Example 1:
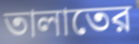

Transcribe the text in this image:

তালাতের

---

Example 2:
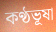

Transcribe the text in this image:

কণ্ঠভূষা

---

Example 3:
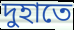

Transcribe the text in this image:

দুহাতে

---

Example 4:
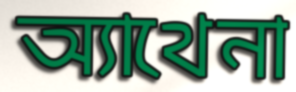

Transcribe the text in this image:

অ্যাথেনা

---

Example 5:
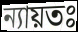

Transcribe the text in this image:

ন্যায়তঃ